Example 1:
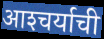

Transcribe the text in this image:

आश्‍चर्याची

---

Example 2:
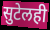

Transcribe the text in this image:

सुटेलही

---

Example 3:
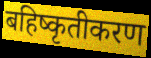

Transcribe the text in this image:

बहिष्कृतीकरण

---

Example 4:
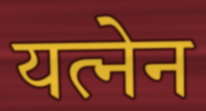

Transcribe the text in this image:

यत्‍नेन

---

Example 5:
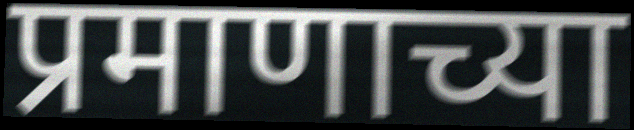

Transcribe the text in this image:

प्रमाणाच्या